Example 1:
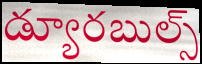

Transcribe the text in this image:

డ్యూరబుల్స్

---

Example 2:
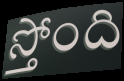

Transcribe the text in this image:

స్తోంది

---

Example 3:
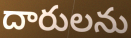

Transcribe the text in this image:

దారులను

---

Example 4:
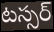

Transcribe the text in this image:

టస్సర్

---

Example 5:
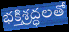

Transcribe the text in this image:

భక్తిశ్రద్ధలతో